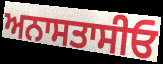
ਅਨਾਸਤਾਸੀਓ